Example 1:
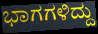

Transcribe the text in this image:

ಭಾಗಗಳಿದ್ದು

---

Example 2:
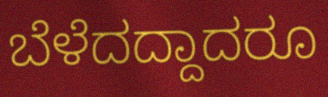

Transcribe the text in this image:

ಬೆಳೆದದ್ದಾದರೂ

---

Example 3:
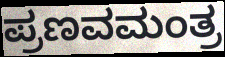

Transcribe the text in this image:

ಪ್ರಣವಮಂತ್ರ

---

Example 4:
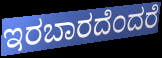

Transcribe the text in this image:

ಇರಬಾರದೆಂದರೆ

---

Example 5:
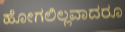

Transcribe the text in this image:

ಹೋಗಲಿಲ್ಲವಾದರೂ